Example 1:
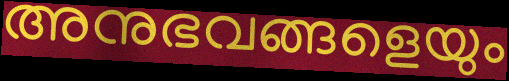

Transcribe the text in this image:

അനുഭവങ്ങളെയും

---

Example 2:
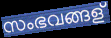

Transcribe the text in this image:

സംഭവങ്ങള്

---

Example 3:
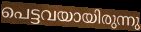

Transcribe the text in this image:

പെട്ടവയായിരുന്നു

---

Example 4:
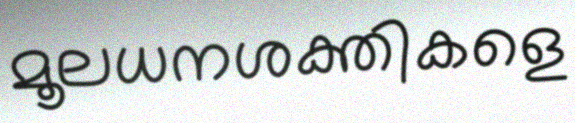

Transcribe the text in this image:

മൂലധനശക്തികളെ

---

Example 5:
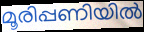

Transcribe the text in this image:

മൂരിപ്പണിയിൽ